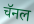
चॅनल